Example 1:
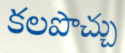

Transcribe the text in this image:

కలపొచ్చు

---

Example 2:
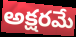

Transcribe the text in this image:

అక్షరమే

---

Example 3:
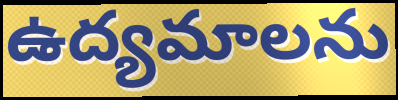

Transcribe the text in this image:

ఉద్యమాలను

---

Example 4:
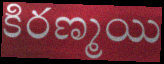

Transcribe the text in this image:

కిరణ్మయి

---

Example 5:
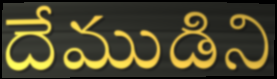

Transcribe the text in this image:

దేముడిని